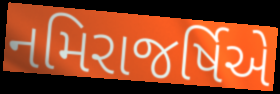
નમિરાજર્ષિએ